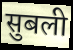
सुबली